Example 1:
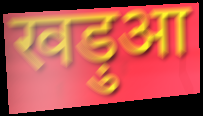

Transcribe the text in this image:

खड़ुआ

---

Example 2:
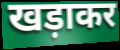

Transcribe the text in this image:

खड़ाकर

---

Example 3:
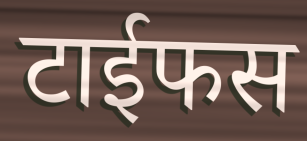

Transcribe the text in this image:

टाईफस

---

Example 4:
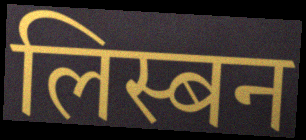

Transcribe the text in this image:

लिस्बन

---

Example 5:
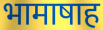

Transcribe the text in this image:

भामाषाह